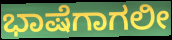
ಭಾಷೆಗಾಗಲೀ